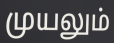
முயலும்